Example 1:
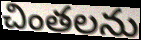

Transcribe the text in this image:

చింతలను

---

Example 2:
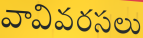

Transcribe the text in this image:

వావివరసలు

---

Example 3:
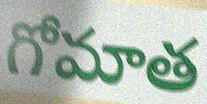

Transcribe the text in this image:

గోమాత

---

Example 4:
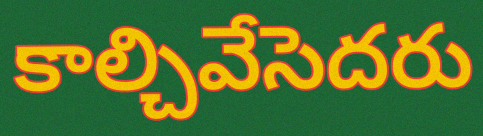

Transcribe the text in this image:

కాల్చివేసెదరు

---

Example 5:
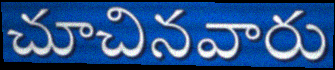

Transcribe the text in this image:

చూచినవారు